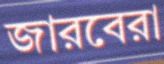
জারবেরা